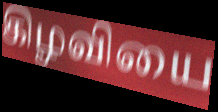
கிழவியை